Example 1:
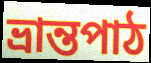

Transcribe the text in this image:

ভ্ৰান্তপাঠ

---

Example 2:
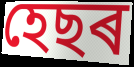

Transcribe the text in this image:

হেছৰ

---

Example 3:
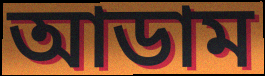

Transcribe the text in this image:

আডাম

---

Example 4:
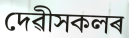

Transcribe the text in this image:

দেৱীসকলৰ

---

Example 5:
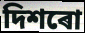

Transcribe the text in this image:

দিশৰো